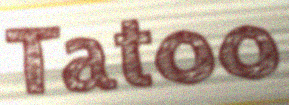
Tatoo